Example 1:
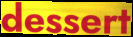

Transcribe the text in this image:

dessert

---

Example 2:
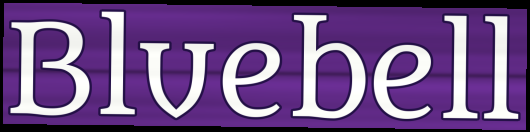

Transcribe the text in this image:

Bluebell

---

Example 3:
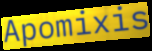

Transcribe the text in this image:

Apomixis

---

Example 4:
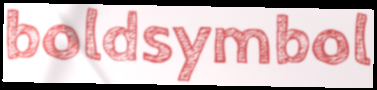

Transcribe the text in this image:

boldsymbol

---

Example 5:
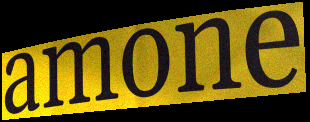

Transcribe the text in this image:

amone